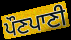
ਪੌਣਪਾਣੀ